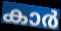
കാർ